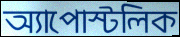
অ্যাপোস্টলিক